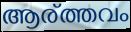
ആര്ത്തവം